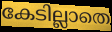
കേടില്ലാതെ